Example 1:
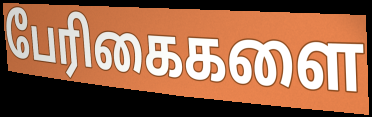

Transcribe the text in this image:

பேரிகைகளை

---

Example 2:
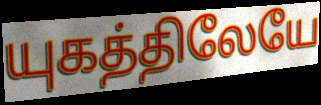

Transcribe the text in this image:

யுகத்திலேயே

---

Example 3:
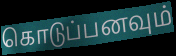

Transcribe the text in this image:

கொடுப்பனவும்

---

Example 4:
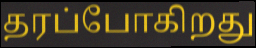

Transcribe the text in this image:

தரப்போகிறது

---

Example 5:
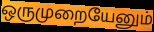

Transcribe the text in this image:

ஒருமுறையேனும்